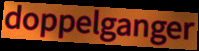
doppelganger